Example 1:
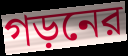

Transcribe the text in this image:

গড়নের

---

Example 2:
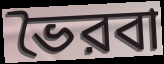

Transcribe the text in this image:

ভৈরবা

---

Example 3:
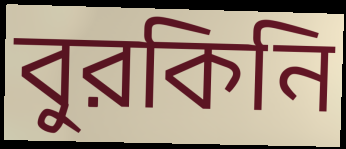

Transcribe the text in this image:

বুরকিনি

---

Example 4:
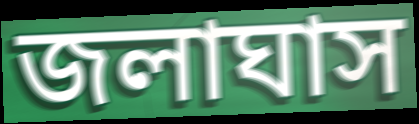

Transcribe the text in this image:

জলাঘাস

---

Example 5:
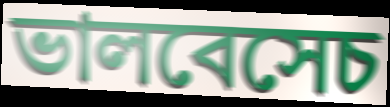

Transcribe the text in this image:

ভালবেসেচ